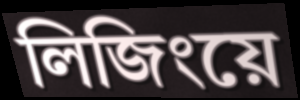
লিজিংয়ে